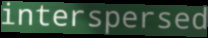
interspersed